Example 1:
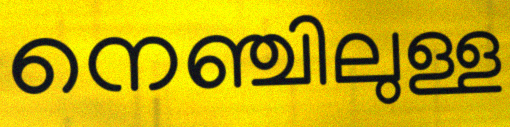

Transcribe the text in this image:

നെഞ്ചിലുള്ള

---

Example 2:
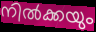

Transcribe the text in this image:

നിൽക്കയും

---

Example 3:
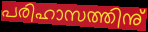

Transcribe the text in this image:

പരിഹാസത്തിനു്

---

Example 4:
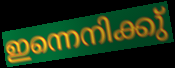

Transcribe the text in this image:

ഇന്നെനിക്കു്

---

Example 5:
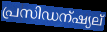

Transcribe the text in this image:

പ്രസിഡന്ഷ്യല്